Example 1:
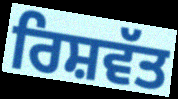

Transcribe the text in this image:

ਰਿਸ਼ਵੱਤ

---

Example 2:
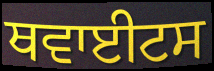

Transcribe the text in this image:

ਥਵਾਈਟਸ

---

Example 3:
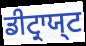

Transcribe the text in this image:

ਡੀਟ੍ਰਾਯ੍ਟ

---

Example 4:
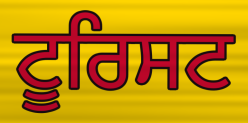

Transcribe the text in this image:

ਟੂਰਿਸਟ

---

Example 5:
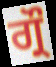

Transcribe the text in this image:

ਗ੍ਰੌ